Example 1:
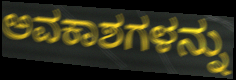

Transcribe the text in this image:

ಅವಕಾಶಗಳನ್ನು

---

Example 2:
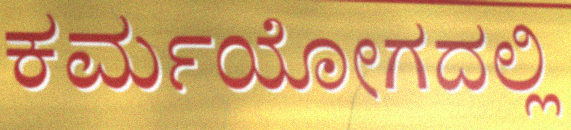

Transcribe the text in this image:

ಕರ್ಮಯೋಗದಲ್ಲಿ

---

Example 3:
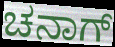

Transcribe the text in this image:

ಚನಾಗ್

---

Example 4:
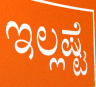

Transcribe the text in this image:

ಇಲ್ಲಷ್ಟೆ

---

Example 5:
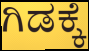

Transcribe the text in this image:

ಗಿಡಕ್ಕೆ